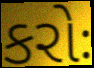
કરોઃ